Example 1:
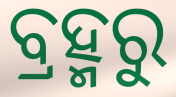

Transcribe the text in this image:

ବ୍ରହ୍ମରୁ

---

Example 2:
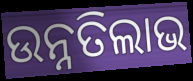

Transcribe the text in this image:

ଉନ୍ନତିଲାଭ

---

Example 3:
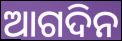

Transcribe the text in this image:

ଆଗଦିନ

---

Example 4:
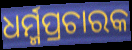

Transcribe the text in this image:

ଧର୍ମ୍ମପ୍ରଚାରକ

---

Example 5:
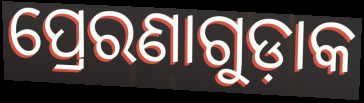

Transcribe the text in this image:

ପ୍ରେରଣାଗୁଡ଼ାକ